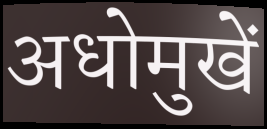
अधोमुखें